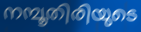
നമ്പൂതിരിയുടെ